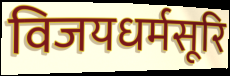
विजयधर्मसूरि